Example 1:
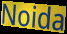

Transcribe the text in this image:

Noida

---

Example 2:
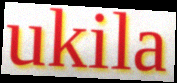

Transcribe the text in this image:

ukila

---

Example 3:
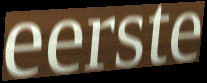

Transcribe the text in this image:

eerste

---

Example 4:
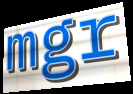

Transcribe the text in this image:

mgr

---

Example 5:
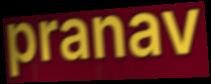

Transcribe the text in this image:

pranav